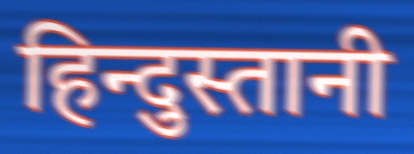
हिन्‍दुस्‍तानी